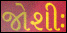
જોશીઃ